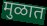
मुळात